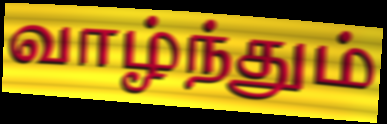
வாழ்ந்தும்